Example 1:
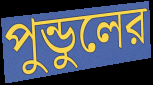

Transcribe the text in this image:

পুন্ডুলের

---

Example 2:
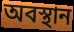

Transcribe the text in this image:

অবস্থান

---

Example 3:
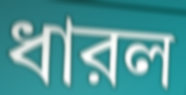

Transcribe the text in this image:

ধারল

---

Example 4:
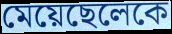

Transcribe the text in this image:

মেয়েছেলেকে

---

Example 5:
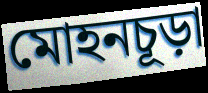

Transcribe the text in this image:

মোহনচূড়া